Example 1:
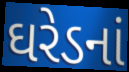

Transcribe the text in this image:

ઘરેડનાં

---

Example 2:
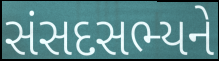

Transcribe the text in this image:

સંસદસભ્યને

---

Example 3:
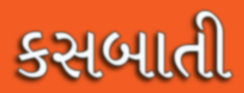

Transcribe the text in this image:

કસબાતી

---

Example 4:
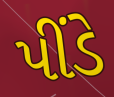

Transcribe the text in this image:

પીંડે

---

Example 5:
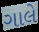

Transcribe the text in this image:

ગાલે